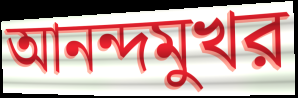
আনন্দমুখর